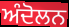
ਅੰਦੋਲਨ